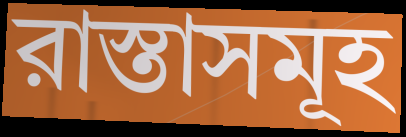
রাস্তাসমূহ